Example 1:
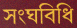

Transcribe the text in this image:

সংঘবিধি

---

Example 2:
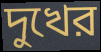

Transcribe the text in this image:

দুখের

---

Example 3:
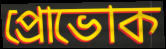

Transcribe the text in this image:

প্রোভোক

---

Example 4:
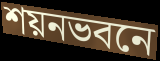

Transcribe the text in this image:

শয়নভবনে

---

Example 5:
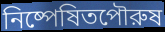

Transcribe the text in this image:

নিষ্পেষিতপৌরুষ